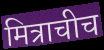
मित्राचीच